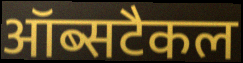
ऑब्सटैकल